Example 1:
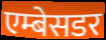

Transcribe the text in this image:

एम्‍बेसडर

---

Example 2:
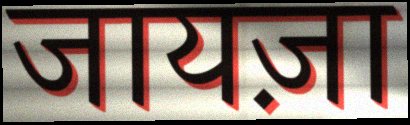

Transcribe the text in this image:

जायज़ा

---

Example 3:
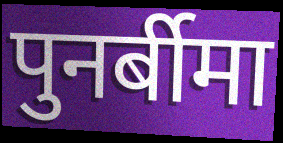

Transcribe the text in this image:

पुनर्बीमा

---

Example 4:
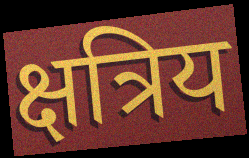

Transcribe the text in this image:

क्षत्रिय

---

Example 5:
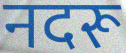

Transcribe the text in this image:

नदरू